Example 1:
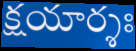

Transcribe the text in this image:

క్షయార్శః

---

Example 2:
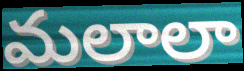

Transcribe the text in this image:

మలాలా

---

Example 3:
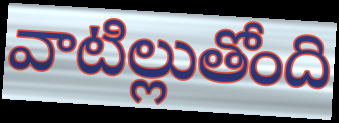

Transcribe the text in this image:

వాటిల్లుతోంది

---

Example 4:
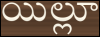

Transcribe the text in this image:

యిల్లూ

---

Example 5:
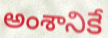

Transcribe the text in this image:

అంశానికే